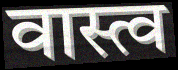
वास्त्व